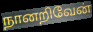
நானறிவேன்